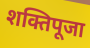
शक्तिपूजा